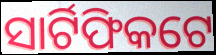
ସାର୍ଟିଫିକଟେ